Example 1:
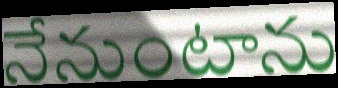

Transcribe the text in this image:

నేనుంటాను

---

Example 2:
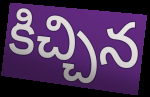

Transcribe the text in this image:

కిచ్చిన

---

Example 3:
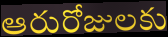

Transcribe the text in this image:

ఆరురోజులకు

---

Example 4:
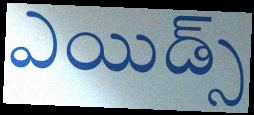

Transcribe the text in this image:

ఎయిడ్స్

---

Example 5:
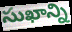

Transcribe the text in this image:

సుఖాన్ని